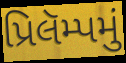
પ્રિલૅમ્પમું